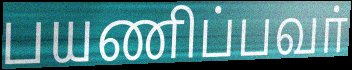
பயணிப்பவர்